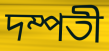
দম্পতী